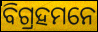
ବିଗ୍ରହମନେ